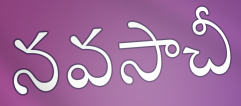
నవసాచీ